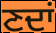
ਣਦਾਂ